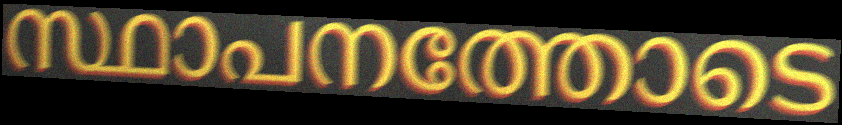
സ്ഥാപനത്തോടെ